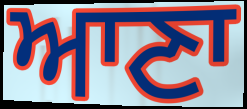
ਆਣਾ